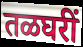
तळघरीं